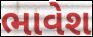
ભાવેશ